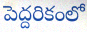
పెద్దరికంలో